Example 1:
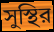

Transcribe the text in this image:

সুস্থির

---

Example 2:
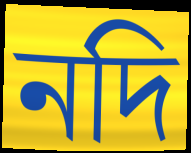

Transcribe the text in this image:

নদি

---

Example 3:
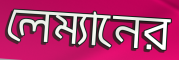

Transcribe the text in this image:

লেম্যানের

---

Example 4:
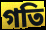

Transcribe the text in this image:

গতি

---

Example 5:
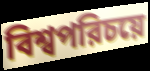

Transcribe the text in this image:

বিশ্বপরিচয়ে